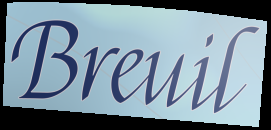
Breuil